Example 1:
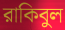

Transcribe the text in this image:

রাকিবুল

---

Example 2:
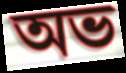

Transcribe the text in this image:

অভ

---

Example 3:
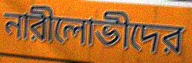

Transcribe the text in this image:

নারীলোভীদের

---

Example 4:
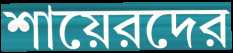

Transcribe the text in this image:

শায়েরদের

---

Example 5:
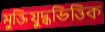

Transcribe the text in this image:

মুক্তিযুদ্ধভিত্তিক